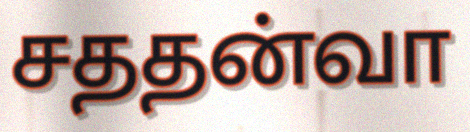
சததன்வா